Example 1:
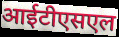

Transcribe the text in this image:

आईटीएसएल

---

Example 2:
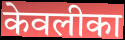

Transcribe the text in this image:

केवलीका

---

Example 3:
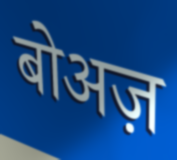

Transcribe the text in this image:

बोअज़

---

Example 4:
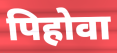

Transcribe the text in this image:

पिहोवा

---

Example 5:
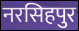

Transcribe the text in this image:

नरसिहपुर